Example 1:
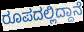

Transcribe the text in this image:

ರೂಪದಲ್ಲಿದ್ದಾನೆ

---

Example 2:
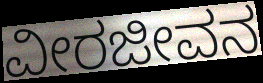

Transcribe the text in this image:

ವೀರಜೀವನ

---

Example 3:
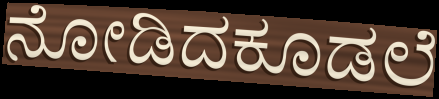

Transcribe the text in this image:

ನೋಡಿದಕೂಡಲೆ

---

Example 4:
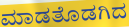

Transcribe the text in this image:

ಮಾಡತೊಡಗಿದ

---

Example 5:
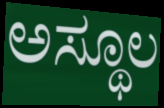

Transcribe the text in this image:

ಅಸ್ಥೂಲ